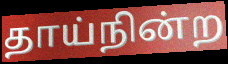
தாய்நின்ற